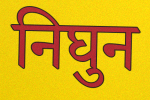
निघुन